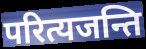
परित्यजन्ति